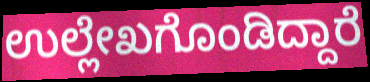
ಉಲ್ಲೇಖಗೊಂಡಿದ್ದಾರೆ